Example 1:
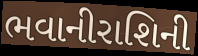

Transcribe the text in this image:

ભવાનીરાશિની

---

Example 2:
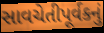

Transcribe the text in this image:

સાવચેતીપૂર્વકનું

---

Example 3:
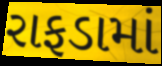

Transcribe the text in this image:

રાફડામાં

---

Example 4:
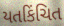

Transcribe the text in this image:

યતકિંચિત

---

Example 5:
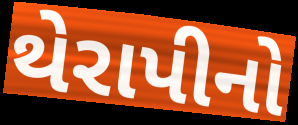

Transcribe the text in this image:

થેરાપીનો